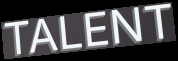
TALENT